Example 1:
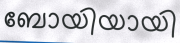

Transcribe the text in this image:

ബോയിയായി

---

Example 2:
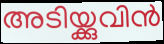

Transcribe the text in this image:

അടിയ്ക്കുവിൻ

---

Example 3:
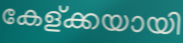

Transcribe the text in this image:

കേള്ക്കയായി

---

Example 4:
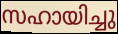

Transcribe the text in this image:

സഹായിച്ചു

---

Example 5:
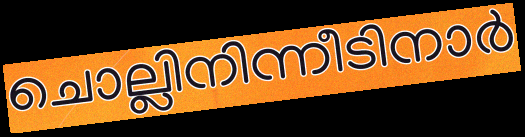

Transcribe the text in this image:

ചൊല്ലിനിന്നീടിനാർ